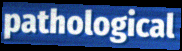
pathological